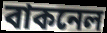
বাকনেল